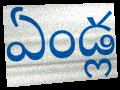
ఏండ్ల